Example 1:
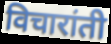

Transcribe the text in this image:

विचारांती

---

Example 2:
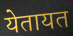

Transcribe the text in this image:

येतायत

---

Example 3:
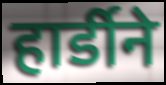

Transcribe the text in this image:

हार्डीने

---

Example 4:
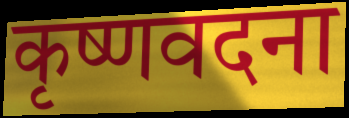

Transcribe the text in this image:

कृष्णवदना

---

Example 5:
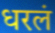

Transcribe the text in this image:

धरलं